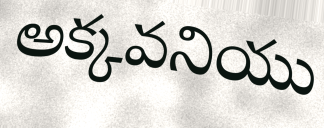
అక్కవనియు